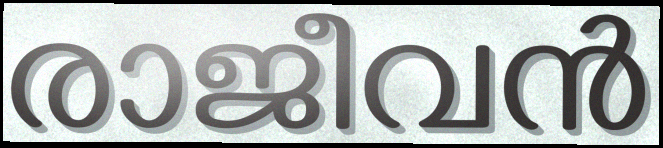
രാജീവൻ